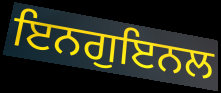
ਇਨਗੁਇਨਲ